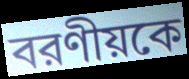
বরণীয়কে